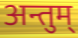
अन्तुम्